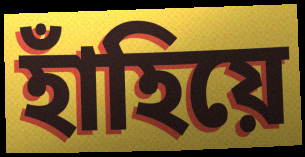
হাঁহিয়ে